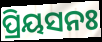
ପ୍ରିୟସନଃ